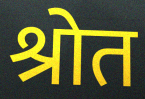
श्रोत